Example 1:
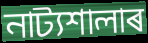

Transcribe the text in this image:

নাট্যশালাৰ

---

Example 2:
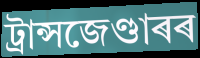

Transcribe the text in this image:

ট্ৰান্সজেণ্ডাৰৰ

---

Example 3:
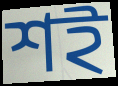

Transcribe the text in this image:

শই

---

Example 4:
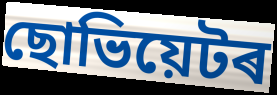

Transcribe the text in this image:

ছোভিয়েটৰ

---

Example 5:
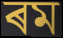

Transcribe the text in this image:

ৰম